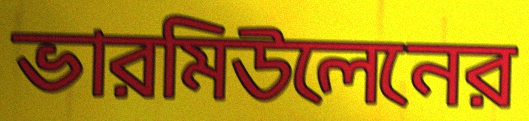
ভারমিউলেনের